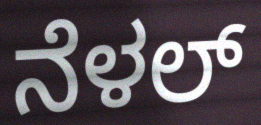
ನೆಳಲ್